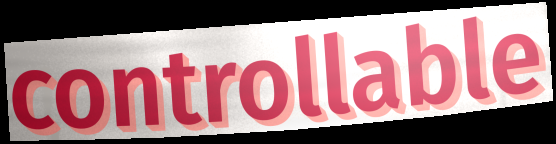
controllable